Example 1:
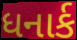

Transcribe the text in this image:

ધનાર્ક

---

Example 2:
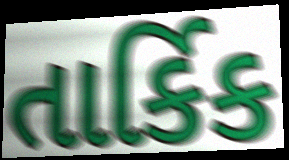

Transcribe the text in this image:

તાર્કિક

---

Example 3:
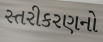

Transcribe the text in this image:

સ્તરીકરણનો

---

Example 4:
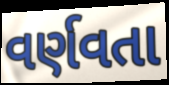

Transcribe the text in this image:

વર્ણવતા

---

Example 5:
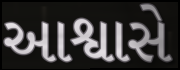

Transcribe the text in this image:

આશ્વાસે